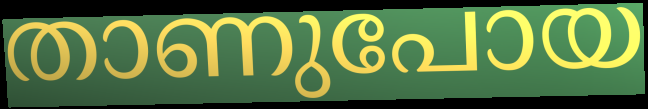
താണുപോയ